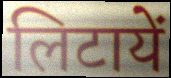
लिटायें